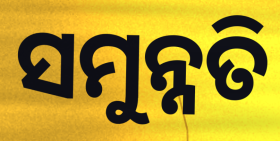
ସମୁନ୍ନତି